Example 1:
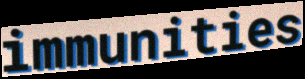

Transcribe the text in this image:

immunities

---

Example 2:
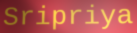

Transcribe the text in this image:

Sripriya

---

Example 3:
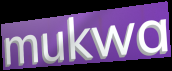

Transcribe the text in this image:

mukwa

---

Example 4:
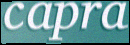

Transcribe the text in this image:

capra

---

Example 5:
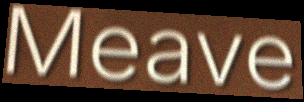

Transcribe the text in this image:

Meave